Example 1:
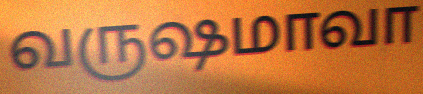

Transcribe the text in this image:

வருஷமாவா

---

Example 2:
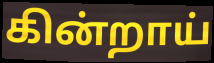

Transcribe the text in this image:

கின்றாய்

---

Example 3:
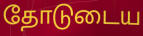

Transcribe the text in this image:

தோடுடைய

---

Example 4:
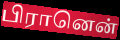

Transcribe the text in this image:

பிரானென்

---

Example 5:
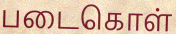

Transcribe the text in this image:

படைகொள்